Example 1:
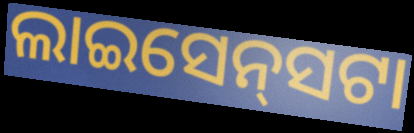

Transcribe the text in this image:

ଲାଇସେନ୍‍ସଟା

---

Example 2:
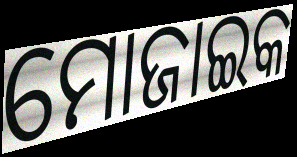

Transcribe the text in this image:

ମୋଜାଇକ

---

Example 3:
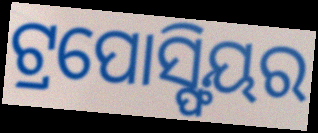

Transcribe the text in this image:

ଟ୍ରପୋସ୍ଫିୟର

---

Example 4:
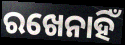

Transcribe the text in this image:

ରଖେନାହିଁ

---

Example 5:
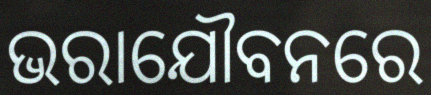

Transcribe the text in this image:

ଭରାଯୌବନରେ